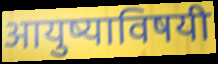
आयुष्याविषयी